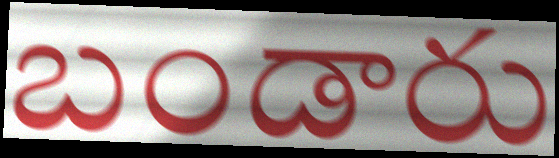
బండారు